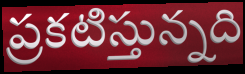
ప్రకటిస్తున్నది